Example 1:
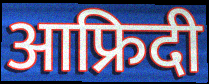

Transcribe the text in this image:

आफ्रिदी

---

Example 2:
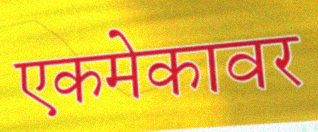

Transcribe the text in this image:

एकमेकावर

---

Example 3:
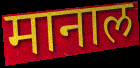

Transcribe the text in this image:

मानाल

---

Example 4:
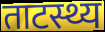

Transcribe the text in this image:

ताटस्थ्य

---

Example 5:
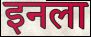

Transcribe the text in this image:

इनला